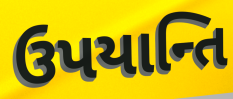
ઉપયાન્તિ